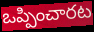
ఒప్పించారట